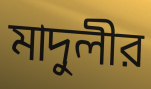
মাদুলীর